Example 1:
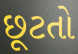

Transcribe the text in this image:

છૂટતો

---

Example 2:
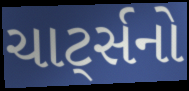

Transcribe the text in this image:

ચાર્ટ્સનો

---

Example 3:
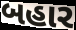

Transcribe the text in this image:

બહાર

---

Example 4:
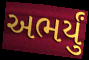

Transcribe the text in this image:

અભર્યું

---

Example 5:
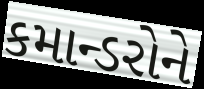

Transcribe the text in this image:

કમાન્ડરોને